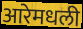
आरेमधली